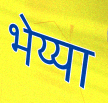
भेय्या